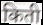
किती